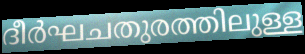
ദീർഘചതുരത്തിലുള്ള